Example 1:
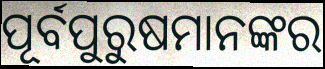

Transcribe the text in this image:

ପୂର୍ବପୁରୁଷମାନଙ୍କର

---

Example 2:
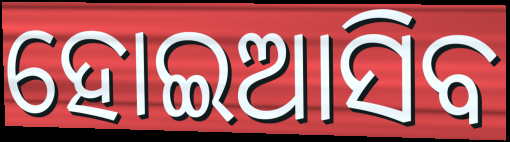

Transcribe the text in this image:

ହୋଇଆସିବ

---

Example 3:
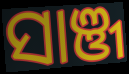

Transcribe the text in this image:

ସାଞ୍ଜ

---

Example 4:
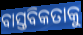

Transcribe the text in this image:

ବାସ୍ତବିକତାକୁ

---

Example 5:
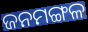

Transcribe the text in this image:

ଜନମଙ୍ଗଳ